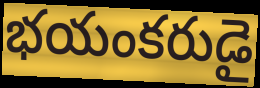
భయంకరుడై